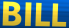
BILL